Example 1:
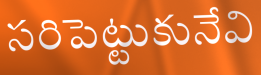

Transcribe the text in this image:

సరిపెట్టుకునేవి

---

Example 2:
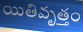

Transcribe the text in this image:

యితివృత్తం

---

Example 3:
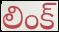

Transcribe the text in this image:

లింక్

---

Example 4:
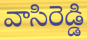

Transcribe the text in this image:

వాసిరెడ్డి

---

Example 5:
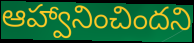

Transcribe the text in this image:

ఆహ్వానించిందని